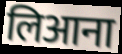
लिआना